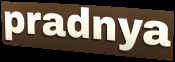
pradnya